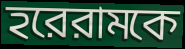
হরেরামকে